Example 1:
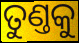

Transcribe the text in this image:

ତୁଣ୍ତକୁ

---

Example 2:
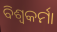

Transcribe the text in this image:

ବିଶ୍ବକର୍ମା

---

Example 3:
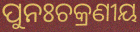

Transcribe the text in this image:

ପୁନଃଚକ୍ରଣୀୟ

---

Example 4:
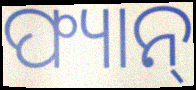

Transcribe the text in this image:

ଫ୍ୟାନ୍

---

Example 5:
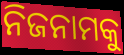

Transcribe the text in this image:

ନିଜନାମକୁ